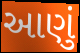
આણું